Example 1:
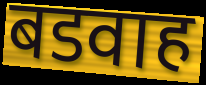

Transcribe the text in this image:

बडवाह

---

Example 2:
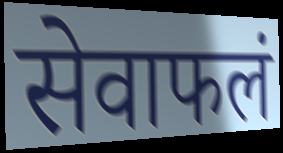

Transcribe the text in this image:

सेवाफलं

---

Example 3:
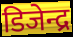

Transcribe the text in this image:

डिजेन्द्र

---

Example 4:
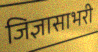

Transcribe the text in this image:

जिज्ञासाभरी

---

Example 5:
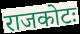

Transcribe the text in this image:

राजकोटः